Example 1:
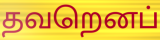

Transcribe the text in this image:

தவறெனப்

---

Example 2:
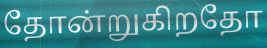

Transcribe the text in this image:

தோன்றுகிறதோ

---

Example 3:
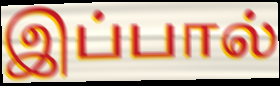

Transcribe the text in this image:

இப்பால்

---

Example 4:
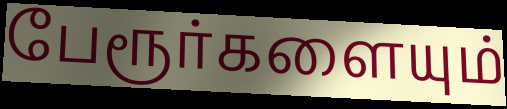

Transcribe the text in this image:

பேரூர்களையும்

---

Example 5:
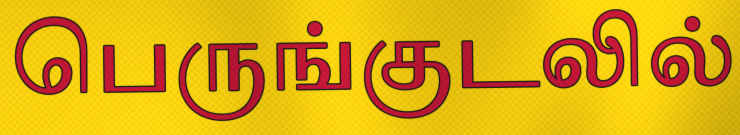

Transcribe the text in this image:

பெருங்குடலில்